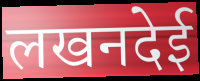
लखनदेई